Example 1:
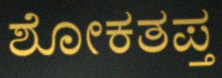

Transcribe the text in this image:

ಶೋಕತಪ್ತ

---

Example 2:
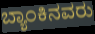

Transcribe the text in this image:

ಬ್ಯಾಂಕಿನವರು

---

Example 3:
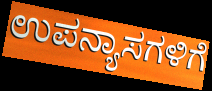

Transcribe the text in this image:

ಉಪನ್ಯಾಸಗಳಿಗೆ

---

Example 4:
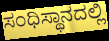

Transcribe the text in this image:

ಸಂಧಿಸ್ಥಾನದಲ್ಲಿ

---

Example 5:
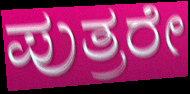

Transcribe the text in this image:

ಪುತ್ರರೇ